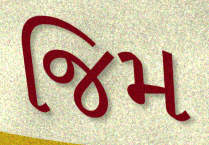
જિમ